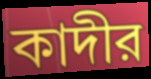
কাদীর